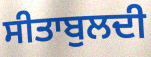
ਸੀਤਾਬੁਲਦੀ